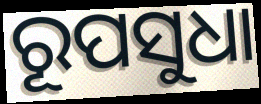
ରୂପସୁଧା